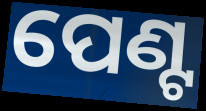
ପେଣ୍ଟ